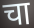
चा